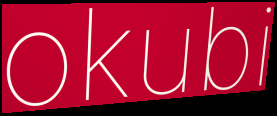
okubi